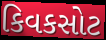
કિવકસોટ